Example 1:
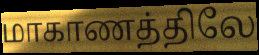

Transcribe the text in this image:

மாகாணத்திலே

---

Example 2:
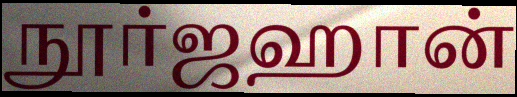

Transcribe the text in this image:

நூர்ஜஹான்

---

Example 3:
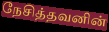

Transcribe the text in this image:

நேசித்தவனின்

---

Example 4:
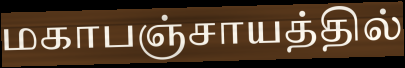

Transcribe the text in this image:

மகாபஞ்சாயத்தில்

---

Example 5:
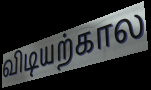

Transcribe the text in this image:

விடியற்கால